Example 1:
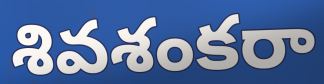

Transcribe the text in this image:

శివశంకరా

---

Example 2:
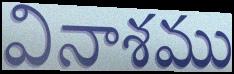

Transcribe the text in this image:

వినాశము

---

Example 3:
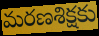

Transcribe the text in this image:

మరణశిక్షకు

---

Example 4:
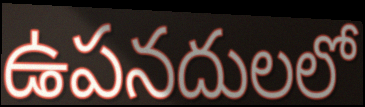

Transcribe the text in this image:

ఉపనదులలో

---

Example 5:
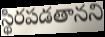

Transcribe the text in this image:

స్థిరపడతానని